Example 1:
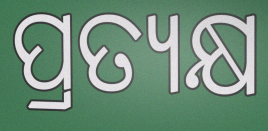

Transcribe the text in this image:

ପ୍ରତ୍ଯକ୍ଷ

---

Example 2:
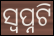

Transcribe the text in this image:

ସ୍ୱପ୍ନଟି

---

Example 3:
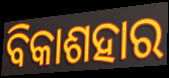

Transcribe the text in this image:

ବିକାଶହାର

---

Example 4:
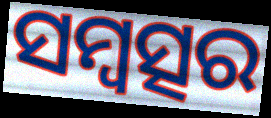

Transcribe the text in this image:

ସମ୍ବତ୍ସର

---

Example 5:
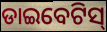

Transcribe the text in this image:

ଡାଇବେଟିସ୍